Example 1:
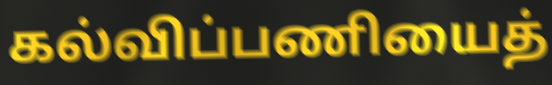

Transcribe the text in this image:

கல்விப்பணியைத்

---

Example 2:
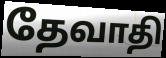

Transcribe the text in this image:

தேவாதி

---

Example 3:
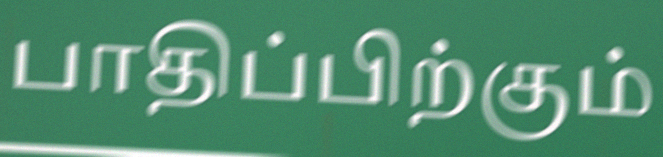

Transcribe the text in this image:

பாதிப்பிற்கும்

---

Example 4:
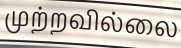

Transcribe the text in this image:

முற்றவில்லை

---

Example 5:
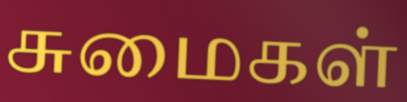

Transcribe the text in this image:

சுமைகள்